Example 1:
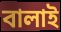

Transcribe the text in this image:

বালাই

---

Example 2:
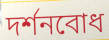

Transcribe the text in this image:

দর্শনবোধ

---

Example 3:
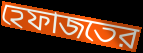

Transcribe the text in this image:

হেফাজতের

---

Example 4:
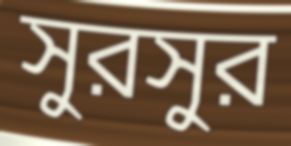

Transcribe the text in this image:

সুরসুর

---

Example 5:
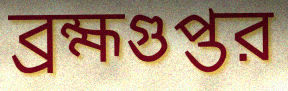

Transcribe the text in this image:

ব্রহ্মগুপ্তর